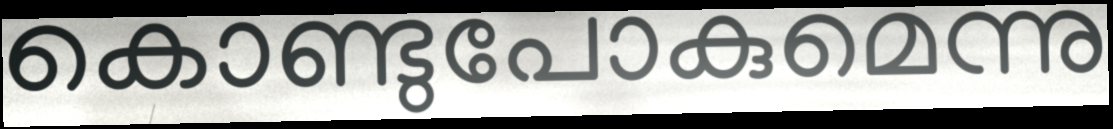
കൊണ്ടുപോകുമെന്നു